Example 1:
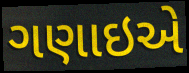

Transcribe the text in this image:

ગણાઇએ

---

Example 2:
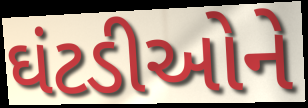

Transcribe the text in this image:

ઘંટડીઓને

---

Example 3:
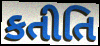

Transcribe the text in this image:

કતીતિ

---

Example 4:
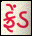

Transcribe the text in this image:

ફ્રેંડ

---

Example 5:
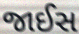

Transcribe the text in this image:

જાઈસ